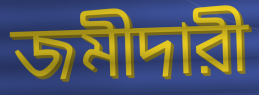
জমীদারী